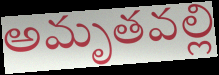
అమృతవల్లి